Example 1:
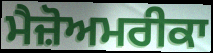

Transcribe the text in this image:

ਮੈਜ਼ੋਅਮਰੀਕਾ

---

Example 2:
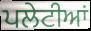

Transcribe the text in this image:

ਪਲੇਟੀਆਂ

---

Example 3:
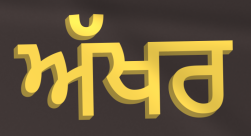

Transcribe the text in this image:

ਅੱਖਰ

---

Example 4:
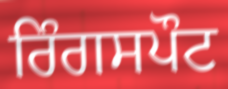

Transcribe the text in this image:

ਰਿੰਗਸਪੌਟ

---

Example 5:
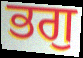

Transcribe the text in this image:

ਭਗੁ